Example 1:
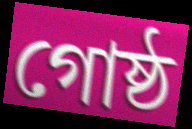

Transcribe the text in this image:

গোষ্ঠ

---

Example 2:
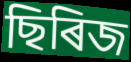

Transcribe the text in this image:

ছিৰিজ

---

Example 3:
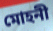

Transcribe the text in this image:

মোহনী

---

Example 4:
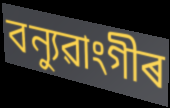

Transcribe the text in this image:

বন্যুৱাংগীৰ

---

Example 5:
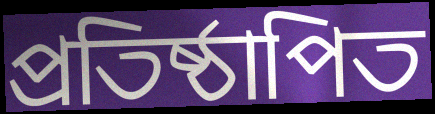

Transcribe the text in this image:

প্ৰতিষ্ঠাপিত